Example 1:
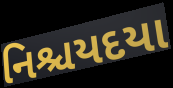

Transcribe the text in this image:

નિશ્ચયદયા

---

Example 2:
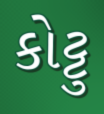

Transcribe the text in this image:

કોટ્ટુ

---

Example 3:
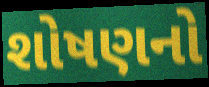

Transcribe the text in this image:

શોષણનો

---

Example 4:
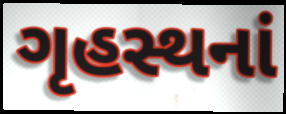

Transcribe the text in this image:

ગૃહસ્થનાં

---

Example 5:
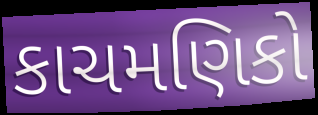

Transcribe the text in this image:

કાચમણિકો